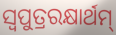
ସ୍ଵପୁତ୍ରରକ୍ଷାର୍ଥମ୍